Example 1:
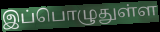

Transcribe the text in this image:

இப்பொழுதுள்ள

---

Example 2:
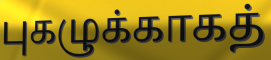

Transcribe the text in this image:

புகழுக்காகத்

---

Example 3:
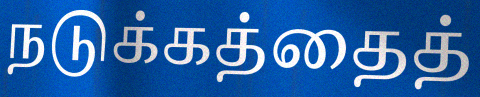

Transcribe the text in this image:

நடுக்கத்தைத்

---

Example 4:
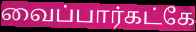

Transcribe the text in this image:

வைப்பார்கட்கே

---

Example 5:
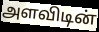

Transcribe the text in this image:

அளவிடின்